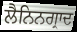
ਲੈਨਿਨਗ੍ਰਾਦ